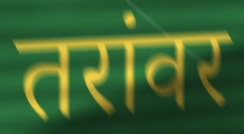
तरांवर